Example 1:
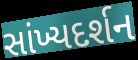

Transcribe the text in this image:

સાંખ્યદર્શન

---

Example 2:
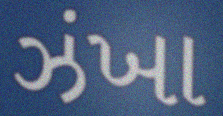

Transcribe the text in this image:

ઝંખા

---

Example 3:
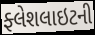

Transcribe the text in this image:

ફ્લેશલાઇટની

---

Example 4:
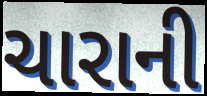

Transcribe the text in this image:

ચારાની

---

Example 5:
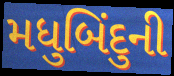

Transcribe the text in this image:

મધુબિંદુની